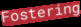
Fostering